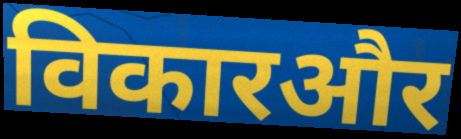
विकारऔर